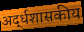
अर्द्धशासकीय